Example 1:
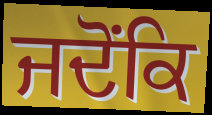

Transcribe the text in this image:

ਜਦੋਂਕਿ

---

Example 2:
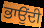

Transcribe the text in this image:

ਭਾਉਂਦੀ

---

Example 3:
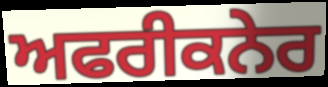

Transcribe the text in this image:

ਅਫਰੀਕਨੇਰ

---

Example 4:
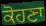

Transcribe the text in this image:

ਕੋਹਣਾ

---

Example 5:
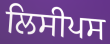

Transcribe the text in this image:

ਲਿਸੀਪਸ